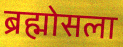
ब्रह्मोसला